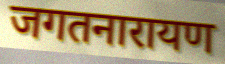
जगतनारायण